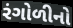
રંગોળીનો